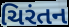
ચિરંતન